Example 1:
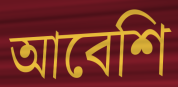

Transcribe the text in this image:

আবেশি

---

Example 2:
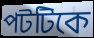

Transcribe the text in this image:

পটটিকে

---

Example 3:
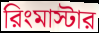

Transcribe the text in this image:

রিংমাস্টার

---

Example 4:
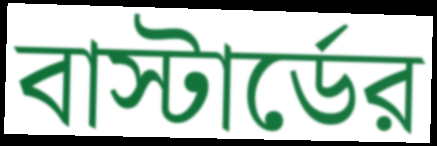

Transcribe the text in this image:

বাস্টার্ডের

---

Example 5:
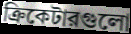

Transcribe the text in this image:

ক্রিকেটারগুলো